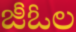
జీఓల